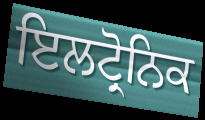
ਇਲਟ੍ਰੋਨਿਕ